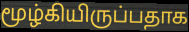
மூழ்கியிருப்பதாக